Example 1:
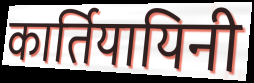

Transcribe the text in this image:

कार्तियायिनी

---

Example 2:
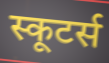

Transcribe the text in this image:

स्‍कूटर्स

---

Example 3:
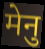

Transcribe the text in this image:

मेनु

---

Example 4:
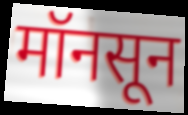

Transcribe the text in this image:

मॉनसून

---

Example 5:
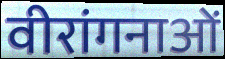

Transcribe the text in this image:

वीरांगनाओं